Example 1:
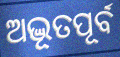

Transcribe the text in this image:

ଅଦ୍ଭୂତପୂର୍ବ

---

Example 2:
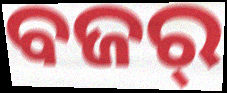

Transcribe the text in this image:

ବଜର୍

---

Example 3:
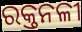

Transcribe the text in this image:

ରକ୍ତନଳୀ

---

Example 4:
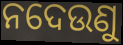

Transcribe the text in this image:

ନଦେଉଣୁ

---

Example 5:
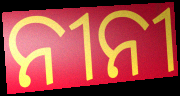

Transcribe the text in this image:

ନୀନୀ